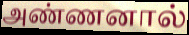
அண்ணனால்